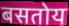
बसतोय